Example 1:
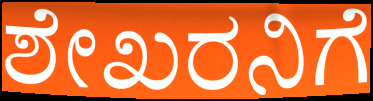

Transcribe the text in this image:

ಶೇಖರನಿಗೆ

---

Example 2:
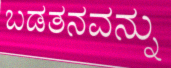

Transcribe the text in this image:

ಬಡತನವನ್ನು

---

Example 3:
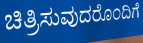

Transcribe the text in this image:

ಚಿತ್ರಿಸುವುದರೊಂದಿಗೆ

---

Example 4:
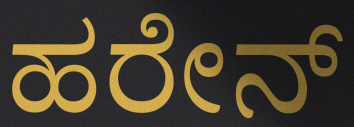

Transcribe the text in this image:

ಹರೇನ್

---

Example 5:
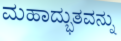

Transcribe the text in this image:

ಮಹಾದ್ಭುತವನ್ನು